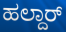
ಹಲ್ದಾರ್